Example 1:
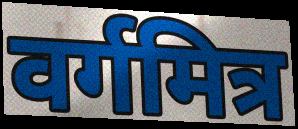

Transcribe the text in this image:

वर्गमित्र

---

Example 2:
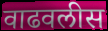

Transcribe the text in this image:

वाढवलीस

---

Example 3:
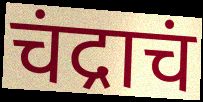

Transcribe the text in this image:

चंद्राचं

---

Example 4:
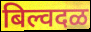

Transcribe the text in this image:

बिल्वदळ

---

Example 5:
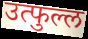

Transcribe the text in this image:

उत्फुल्ल